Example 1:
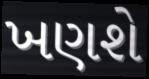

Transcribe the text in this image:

ખણશે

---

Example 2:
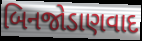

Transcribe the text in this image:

બિનજોડાણવાદ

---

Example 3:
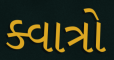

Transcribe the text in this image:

ક્વાત્રો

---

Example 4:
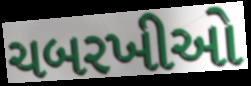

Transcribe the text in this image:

ચબરખીઓ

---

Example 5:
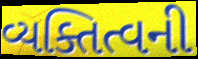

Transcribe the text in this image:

વ્યક્તિત્વની